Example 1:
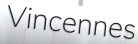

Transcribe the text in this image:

Vincennes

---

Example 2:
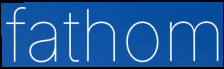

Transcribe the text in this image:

fathom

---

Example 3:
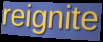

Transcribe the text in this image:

reignite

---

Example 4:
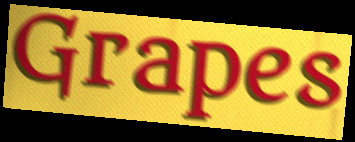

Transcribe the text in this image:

Grapes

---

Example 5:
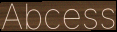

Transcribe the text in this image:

Abcess